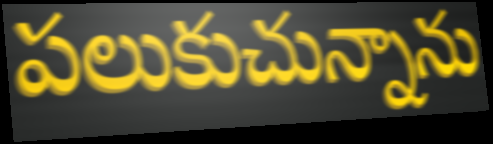
పలుకుచున్నాను